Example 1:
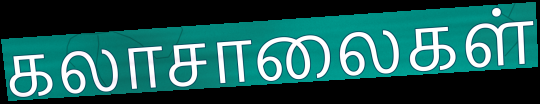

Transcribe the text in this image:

கலாசாலைகள்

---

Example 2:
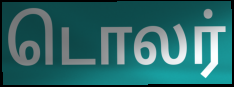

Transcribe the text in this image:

டொலர்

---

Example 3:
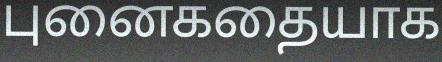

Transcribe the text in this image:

புனைகதையாக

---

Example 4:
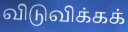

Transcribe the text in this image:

விடுவிக்கக்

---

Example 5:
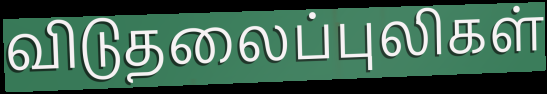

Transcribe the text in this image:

விடுதலைப்புலிகள்